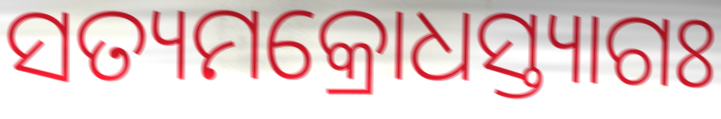
ସତ୍ୟମକ୍ରୋଧସ୍ତ୍ୟାଗଃ